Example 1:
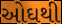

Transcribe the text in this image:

ઓઘથી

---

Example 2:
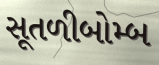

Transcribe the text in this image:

સૂતળીબોમ્બ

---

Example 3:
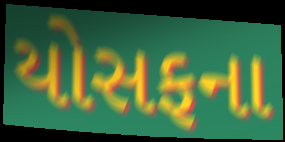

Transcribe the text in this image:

યોસફના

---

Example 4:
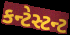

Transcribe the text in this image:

કન્ટેસ્ટન્ટ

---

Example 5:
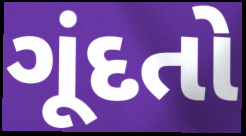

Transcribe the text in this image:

ગૂંદતો